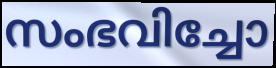
സംഭവിച്ചോ